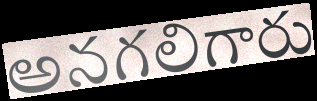
అనగలిగారు